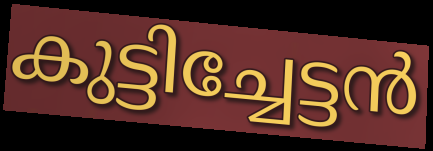
കുട്ടിച്ചേട്ടൻ